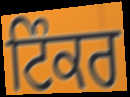
ਟਿੰਕਰ